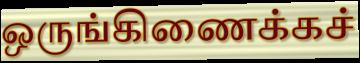
ஒருங்கிணைக்கச்